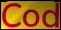
Cod